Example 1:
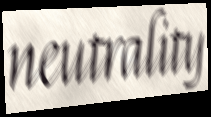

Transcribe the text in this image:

neutrality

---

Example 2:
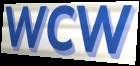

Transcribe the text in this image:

WCW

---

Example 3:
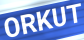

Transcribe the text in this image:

ORKUT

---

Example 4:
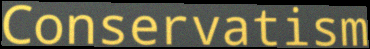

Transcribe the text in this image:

Conservatism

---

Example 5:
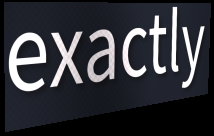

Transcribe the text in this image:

exactly